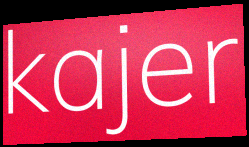
kajer